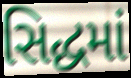
સિદ્ધમાં